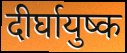
दीर्घायुष्क